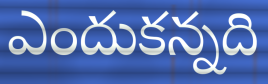
ఎందుకన్నది